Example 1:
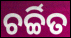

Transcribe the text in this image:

ଚର୍ଚ୍ଚିତ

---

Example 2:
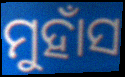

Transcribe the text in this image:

ମୁହାଁସ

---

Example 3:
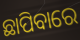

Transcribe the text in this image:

ଛାପିବାରେ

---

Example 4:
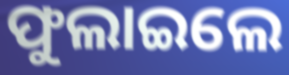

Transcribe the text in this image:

ଫୁଲାଇଲେ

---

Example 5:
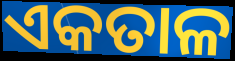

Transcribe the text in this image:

ଏକତାଳ